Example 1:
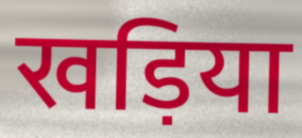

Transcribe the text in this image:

खड़िया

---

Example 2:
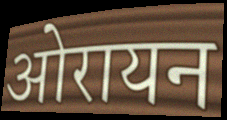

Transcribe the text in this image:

ओरायन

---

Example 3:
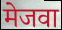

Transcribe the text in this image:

मेजवा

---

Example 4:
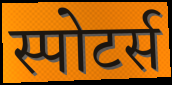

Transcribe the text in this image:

स्पोटर्स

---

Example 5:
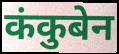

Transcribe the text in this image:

कंकुबेन